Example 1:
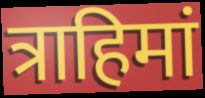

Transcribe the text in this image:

त्राहिमां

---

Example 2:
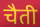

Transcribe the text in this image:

चैती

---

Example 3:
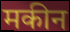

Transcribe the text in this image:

मकीन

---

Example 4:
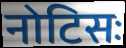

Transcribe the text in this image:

नोटिसः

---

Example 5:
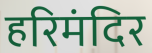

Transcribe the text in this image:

हरिमंदिर